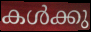
കൾക്കു